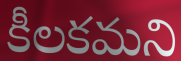
కీలకమని